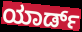
ಯಾರ್ಡ್